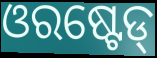
ଓରଷ୍ଟେଡ୍